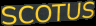
SCOTUS